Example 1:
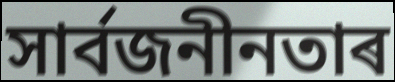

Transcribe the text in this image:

সাৰ্বজনীনতাৰ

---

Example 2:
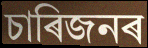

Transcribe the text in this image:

চাৰিজনৰ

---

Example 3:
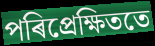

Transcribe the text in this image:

পৰিপ্ৰেক্ষিততে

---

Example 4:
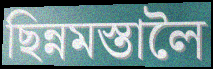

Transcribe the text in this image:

ছিন্নমস্তালৈ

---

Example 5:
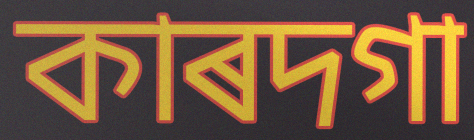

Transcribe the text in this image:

কাৰদগা